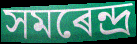
সমৰেন্দ্ৰ